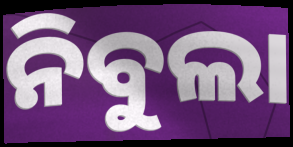
ନିବୁଲା